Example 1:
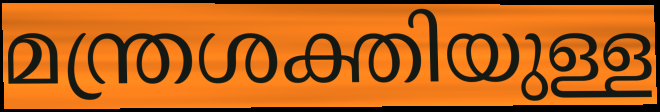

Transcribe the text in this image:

മന്ത്രശക്തിയുള്ള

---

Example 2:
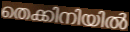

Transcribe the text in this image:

തെക്കിനിയിൽ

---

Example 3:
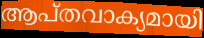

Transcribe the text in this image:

ആപ്തവാക്യമായി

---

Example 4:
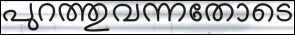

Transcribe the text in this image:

പുറത്തുവന്നതോടെ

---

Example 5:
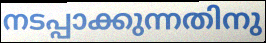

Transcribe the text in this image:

നടപ്പാക്കുന്നതിനു